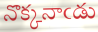
నొక్కనాఁడు